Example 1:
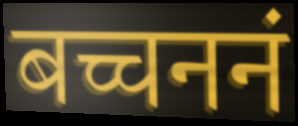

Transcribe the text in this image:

बच्चननं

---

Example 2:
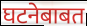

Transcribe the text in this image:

घटनेबाबत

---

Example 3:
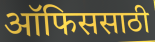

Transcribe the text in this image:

ऑफिससाठी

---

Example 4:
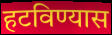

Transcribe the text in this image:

हटविण्यास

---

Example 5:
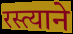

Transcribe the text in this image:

रस्त्याने